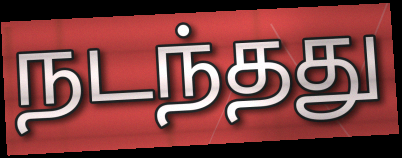
நடந்தது